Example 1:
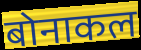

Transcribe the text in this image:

बोनाकल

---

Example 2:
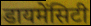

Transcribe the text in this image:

डायमेंसिटी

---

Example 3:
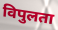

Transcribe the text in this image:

विपुलता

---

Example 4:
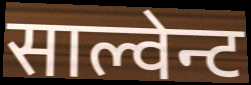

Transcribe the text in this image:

साल्वेन्ट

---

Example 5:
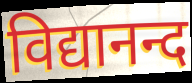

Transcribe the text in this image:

विद्यानन्द